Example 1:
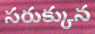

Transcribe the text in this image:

సరుక్కున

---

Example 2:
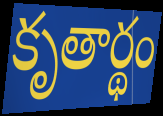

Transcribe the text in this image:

కృతార్థం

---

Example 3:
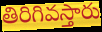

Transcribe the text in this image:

తిరిగివస్తారు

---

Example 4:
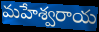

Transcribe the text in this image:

మహేశ్వరాయ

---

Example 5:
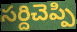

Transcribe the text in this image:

సర్దిచెప్పి